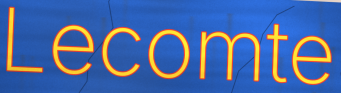
Lecomte